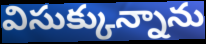
విసుక్కున్నాను